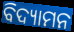
ବିଦ୍ୟାମନ